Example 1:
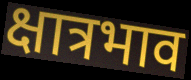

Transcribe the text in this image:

क्षात्रभाव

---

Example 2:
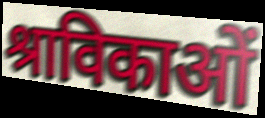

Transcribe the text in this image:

श्राविकाओं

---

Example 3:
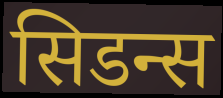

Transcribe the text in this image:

सिडन्स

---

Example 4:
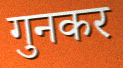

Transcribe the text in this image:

गुनकर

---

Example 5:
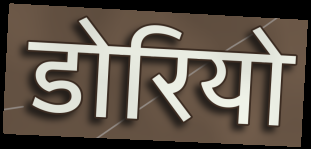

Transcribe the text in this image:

डोरियो